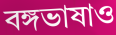
বঙ্গভাষাও